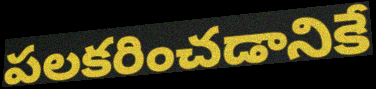
పలకరించడానికే